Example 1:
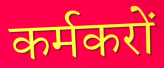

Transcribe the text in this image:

कर्मकरों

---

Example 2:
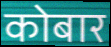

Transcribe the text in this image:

कोबार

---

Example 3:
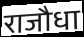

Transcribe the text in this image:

राजौधा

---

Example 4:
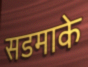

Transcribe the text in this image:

सडमाके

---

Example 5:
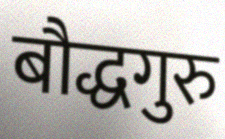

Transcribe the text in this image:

बौद्धगुरु